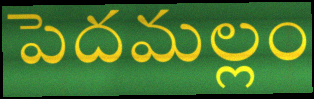
పెదమల్లం